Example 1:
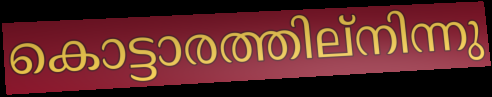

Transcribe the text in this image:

കൊട്ടാരത്തില്നിന്നു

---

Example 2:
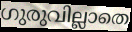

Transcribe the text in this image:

ഗുരുവില്ലാതെ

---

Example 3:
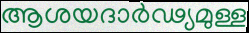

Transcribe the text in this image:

ആശയദാർഢ്യമുള്ള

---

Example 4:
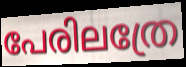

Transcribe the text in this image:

പേരിലത്രേ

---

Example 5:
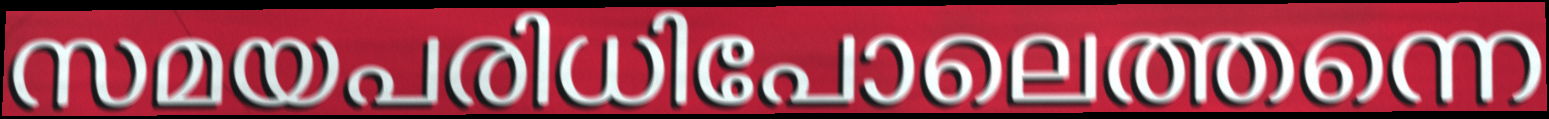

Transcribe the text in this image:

സമയപരിധിപോലെത്തന്നെ